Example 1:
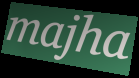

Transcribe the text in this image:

majha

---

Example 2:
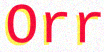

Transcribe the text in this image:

Orr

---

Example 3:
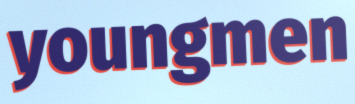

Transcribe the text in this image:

youngmen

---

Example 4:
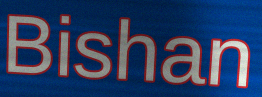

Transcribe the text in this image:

Bishan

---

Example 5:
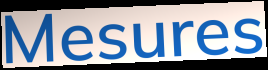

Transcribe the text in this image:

Mesures